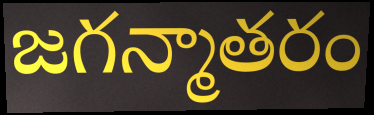
జగన్మాతరం